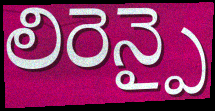
లిరెన్పై